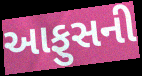
આફુસની